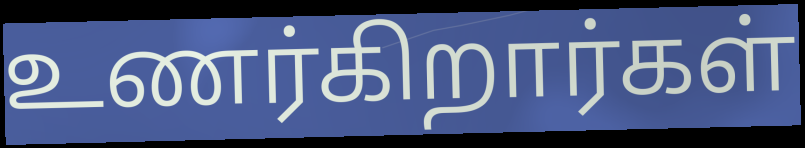
உணர்கிறார்கள்